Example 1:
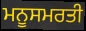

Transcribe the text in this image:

ਮਨੂਸਮਰਤੀ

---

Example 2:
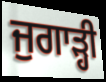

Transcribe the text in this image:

ਜੁਗਾੜ੍ਹੀ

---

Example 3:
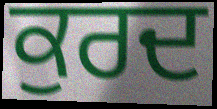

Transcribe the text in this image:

ਕੁਰਦ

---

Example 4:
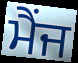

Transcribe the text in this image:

ਮੈਂਜ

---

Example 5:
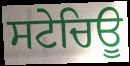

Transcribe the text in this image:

ਸਟੇਚਿਊ